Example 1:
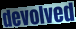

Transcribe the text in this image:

devolved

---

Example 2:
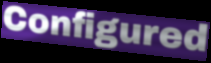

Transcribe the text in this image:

Configured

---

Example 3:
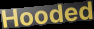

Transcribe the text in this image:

Hooded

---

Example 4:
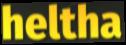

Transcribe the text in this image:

heltha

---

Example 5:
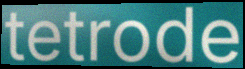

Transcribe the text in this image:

tetrode